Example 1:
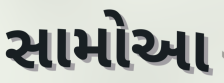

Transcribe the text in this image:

સામોઆ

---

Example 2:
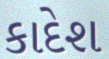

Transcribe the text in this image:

કાદેશ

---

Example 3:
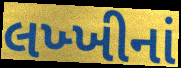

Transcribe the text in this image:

લખ્ખીનાં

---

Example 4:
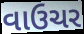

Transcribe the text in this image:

વાઉચર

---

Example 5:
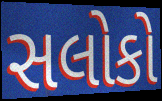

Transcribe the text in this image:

સલોકો